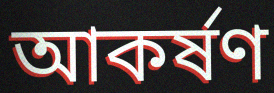
আকর্ষণ